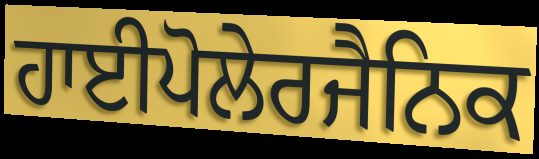
ਹਾਈਪੋਲੇਰਜੈਨਿਕ